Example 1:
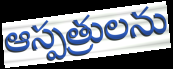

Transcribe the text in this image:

ఆస్పత్రులను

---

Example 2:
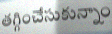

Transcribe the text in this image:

తగ్గించేసుకున్నాం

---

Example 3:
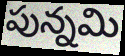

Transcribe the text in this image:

పున్నమి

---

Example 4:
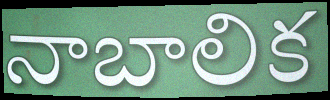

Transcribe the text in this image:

నాబాలిక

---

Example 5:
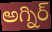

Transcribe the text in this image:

అగ్నిర్